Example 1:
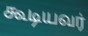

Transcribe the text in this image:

கூடியவர்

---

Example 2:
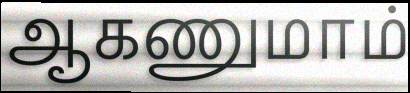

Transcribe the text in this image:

ஆகணுமாம்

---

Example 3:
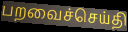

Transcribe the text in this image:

பறவைச்செய்தி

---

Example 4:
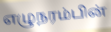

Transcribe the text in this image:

எழுநரம்பின்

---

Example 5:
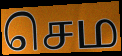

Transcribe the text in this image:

செம